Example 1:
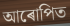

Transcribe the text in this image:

আৰোপিত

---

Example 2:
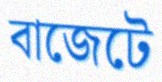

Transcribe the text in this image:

বাজেটে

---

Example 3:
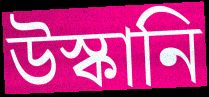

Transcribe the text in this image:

উস্কানি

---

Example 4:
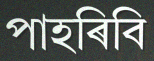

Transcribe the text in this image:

পাহৰিবি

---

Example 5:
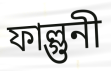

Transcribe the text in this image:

ফাল্গুনী